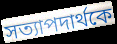
সত্যাপদার্থকে